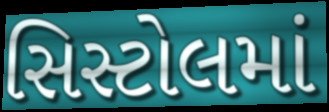
સિસ્ટોલમાં